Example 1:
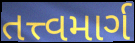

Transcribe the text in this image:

તત્ત્વમાર્ગ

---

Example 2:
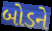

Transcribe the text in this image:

બોડને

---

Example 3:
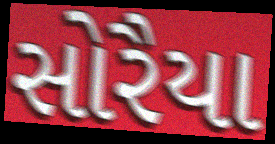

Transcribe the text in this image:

સોરૈયા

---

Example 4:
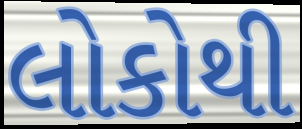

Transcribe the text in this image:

લોકોથી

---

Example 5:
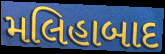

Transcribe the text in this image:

મલિહાબાદ